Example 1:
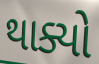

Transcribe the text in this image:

થાક્યો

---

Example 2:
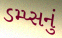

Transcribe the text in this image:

ડમ્પ્સનું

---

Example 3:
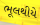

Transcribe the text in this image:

ભૂલથીયે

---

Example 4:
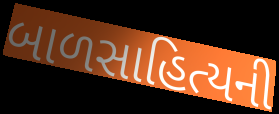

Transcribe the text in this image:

બાળસાહિત્યની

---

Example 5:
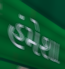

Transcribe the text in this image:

હંમેશા